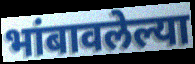
भांबावलेल्या